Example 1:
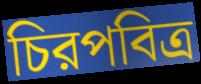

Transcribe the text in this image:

চিরপবিত্র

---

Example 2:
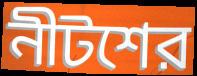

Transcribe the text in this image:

নীটশের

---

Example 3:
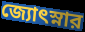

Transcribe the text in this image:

জ্যোৎস্নার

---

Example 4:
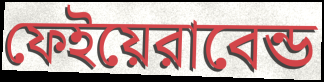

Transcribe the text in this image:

ফেইয়েরাবেন্ড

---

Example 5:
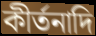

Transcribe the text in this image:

কীর্তনাদি